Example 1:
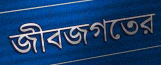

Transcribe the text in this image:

জীবজগতের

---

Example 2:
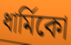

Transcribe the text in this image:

ধার্মিকো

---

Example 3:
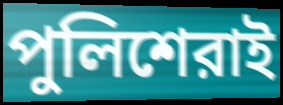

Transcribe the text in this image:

পুলিশেরাই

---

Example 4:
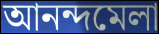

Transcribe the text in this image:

আনন্দমেলা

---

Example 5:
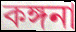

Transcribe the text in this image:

কঙ্গনা